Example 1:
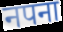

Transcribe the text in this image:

नपना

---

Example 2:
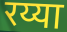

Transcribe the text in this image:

रय्या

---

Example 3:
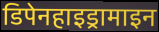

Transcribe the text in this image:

डिपेनहाइड्रामाइन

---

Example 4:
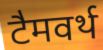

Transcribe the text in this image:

टैमवर्थ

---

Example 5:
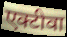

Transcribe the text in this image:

एक्टीवा